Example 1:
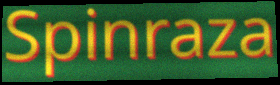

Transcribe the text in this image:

Spinraza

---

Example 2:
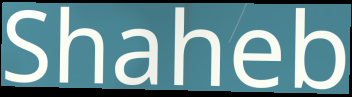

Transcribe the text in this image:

Shaheb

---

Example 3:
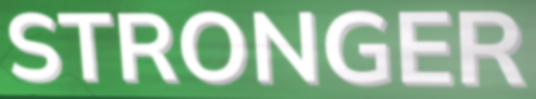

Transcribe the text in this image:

STRONGER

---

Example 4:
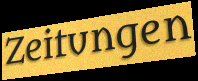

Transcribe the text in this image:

Zeitungen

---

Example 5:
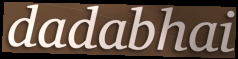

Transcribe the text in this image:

dadabhai